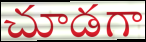
చూడగా